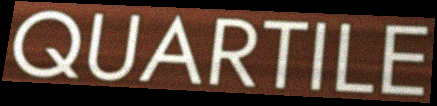
QUARTILE